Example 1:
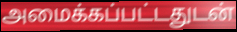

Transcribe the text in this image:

அமைக்கப்பட்டதுடன்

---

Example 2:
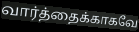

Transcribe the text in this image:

வார்த்தைக்காகவே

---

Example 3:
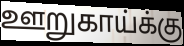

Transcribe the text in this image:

ஊறுகாய்க்கு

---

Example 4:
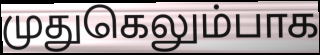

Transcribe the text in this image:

முதுகெலும்பாக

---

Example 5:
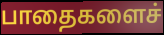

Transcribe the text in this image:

பாதைகளைச்